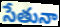
సేతునా